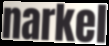
narkel